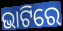
ଭାଟିରେ